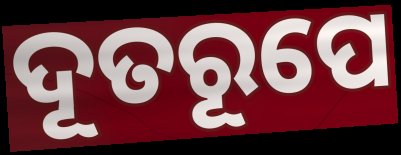
ଦୂତରୂପେ